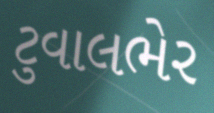
ટુવાલભેર